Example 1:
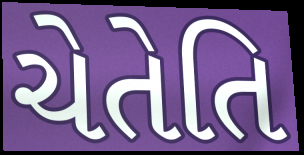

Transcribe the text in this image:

ચેતેતિ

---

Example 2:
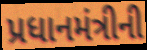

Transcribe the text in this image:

પ્રધાનમંત્રીની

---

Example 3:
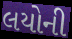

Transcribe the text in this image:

લયોની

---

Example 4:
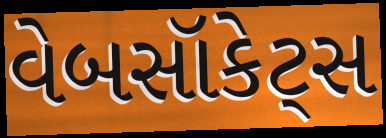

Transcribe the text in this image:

વેબસૉકેટ્સ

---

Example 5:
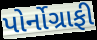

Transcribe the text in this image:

પોર્નોગ્રાફી